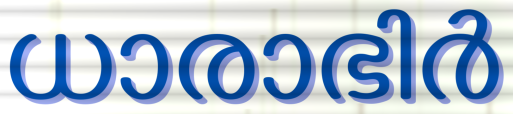
ധാരാഭിർ